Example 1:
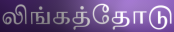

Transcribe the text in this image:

லிங்கத்தோடு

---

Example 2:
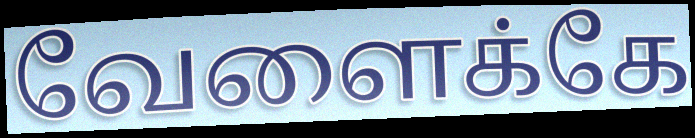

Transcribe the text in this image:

வேளைக்கே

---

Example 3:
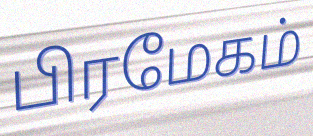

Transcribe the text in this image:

பிரமேகம்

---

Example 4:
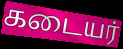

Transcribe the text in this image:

கடையர்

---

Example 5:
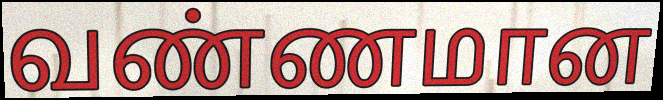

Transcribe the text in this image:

வண்ணமான